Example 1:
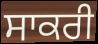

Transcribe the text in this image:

ਸਾਕਰੀ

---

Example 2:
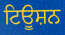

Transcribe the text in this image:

ਟਿਊਸ਼ਨ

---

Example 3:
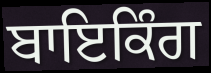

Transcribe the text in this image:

ਬਾਇਕਿੰਗ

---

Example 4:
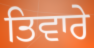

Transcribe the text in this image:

ਤਿਵਾਰੇ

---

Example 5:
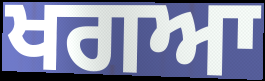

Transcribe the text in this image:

ਖਗਆ